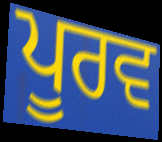
ਪੂਰਵ